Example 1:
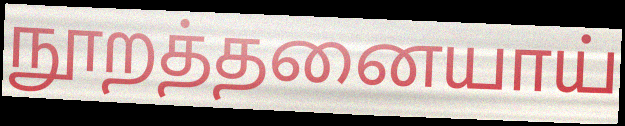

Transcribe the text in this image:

நூறத்தனையாய்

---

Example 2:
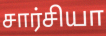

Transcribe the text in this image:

சார்சியா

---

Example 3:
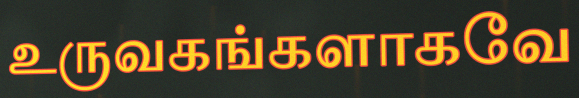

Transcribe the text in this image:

உருவகங்களாகவே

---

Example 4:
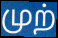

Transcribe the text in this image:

முற்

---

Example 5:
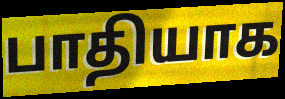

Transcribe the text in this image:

பாதியாக